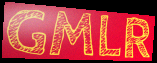
GMLR